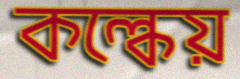
কল্কেয়